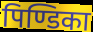
पिण्डिका